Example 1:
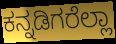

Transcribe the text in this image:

ಕನ್ನಡಿಗರೆಲ್ಲಾ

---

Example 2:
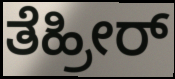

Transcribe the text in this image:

ತೆಹ್ರೀರ್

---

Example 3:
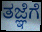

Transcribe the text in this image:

ತಜ್ಞೆಗೆ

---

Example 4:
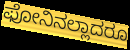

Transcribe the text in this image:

ಫೋನಿನಲ್ಲಾದರೂ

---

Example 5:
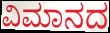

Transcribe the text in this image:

ವಿಮಾನದ